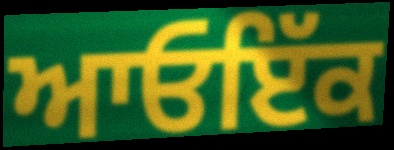
ਆਓਇੱਕ